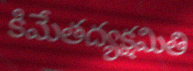
కిమేతద్యక్షమితి